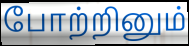
போற்றினும்